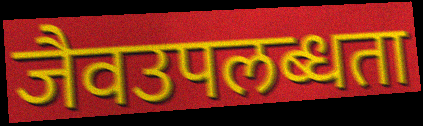
जैवउपलब्धता